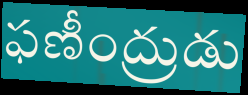
ఫణీంద్రుడు